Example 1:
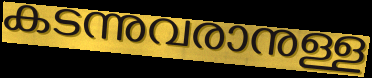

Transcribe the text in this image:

കടന്നുവരാനുള്ള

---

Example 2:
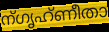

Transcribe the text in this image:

ന്ഗൃഹ്ണീതാ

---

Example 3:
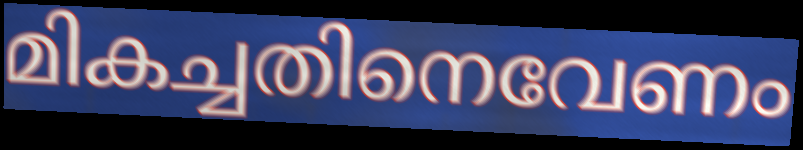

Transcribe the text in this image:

മികച്ചതിനെവേണം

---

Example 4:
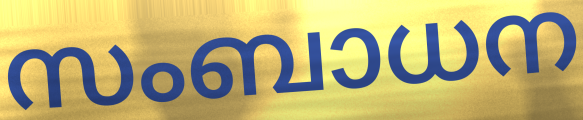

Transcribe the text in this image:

സംബാധന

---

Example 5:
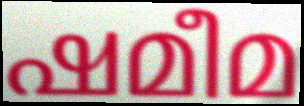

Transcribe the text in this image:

ഷമീമ